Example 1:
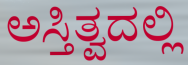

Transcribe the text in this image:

ಅಸ್ತಿತ್ವದಲ್ಲಿ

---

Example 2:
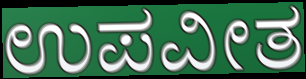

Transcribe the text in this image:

ಉಪವೀತ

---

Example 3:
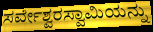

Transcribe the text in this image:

ಸರ್ವೇಶ್ವರಸ್ವಾಮಿಯನ್ನು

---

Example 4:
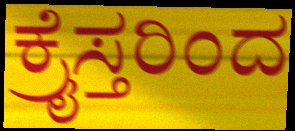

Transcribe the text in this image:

ಕ್ರೈಸ್ತರಿಂದ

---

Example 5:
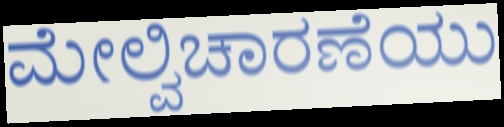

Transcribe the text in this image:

ಮೇಲ್ವಿಚಾರಣೆಯು